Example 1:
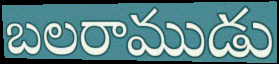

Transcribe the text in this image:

బలరాముడు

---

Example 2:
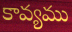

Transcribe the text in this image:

కావ్యము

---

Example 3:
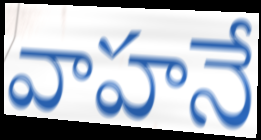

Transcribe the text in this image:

వాహనే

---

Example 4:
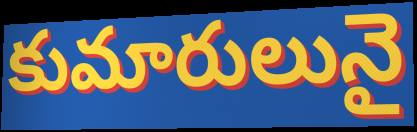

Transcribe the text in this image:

కుమారులునై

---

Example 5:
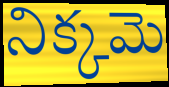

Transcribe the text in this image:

నిక్కమె